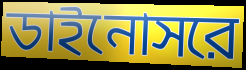
ডাইনোসরে